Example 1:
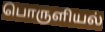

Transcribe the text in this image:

பொருளியல்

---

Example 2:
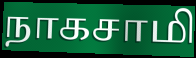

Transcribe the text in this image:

நாகசாமி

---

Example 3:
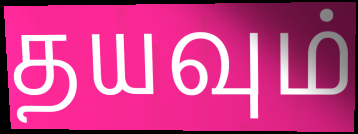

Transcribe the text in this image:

தயவும்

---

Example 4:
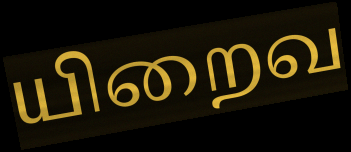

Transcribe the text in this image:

யிறைவ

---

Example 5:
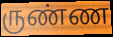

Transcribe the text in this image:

ருண்ண